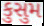
કુસુમ